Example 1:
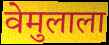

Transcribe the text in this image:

वेमुलाला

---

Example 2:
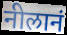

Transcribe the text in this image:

नीलानं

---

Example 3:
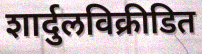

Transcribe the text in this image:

शार्दुलविक्रीडित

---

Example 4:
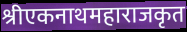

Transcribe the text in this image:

श्रीएकनाथमहाराजकृत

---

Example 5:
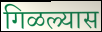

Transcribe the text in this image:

गिळल्यास